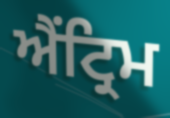
ਐਂਟ੍ਰਿਮ